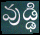
వుడ్ఢి